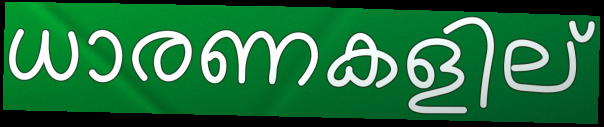
ധാരണകളില്